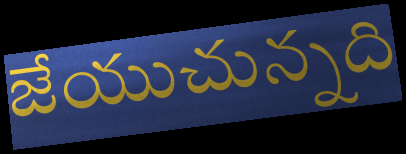
జేయుచున్నది